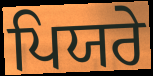
ਪਿਯਰੇ